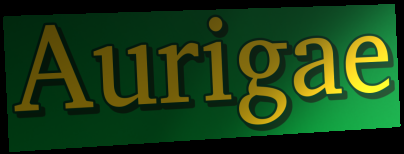
Aurigae